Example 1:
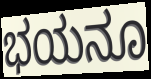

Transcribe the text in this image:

ಭಯನೂ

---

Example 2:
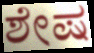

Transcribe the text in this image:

ಶೇಷ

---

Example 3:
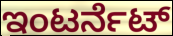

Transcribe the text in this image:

ಇಂಟರ್ನೆಟ್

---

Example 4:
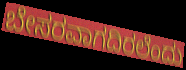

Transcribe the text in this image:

ಬೇಸರವಾಗದಿರಲೆಂದು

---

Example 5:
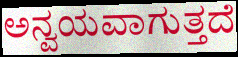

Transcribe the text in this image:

ಅನ್ವಯವಾಗುತ್ತದೆ